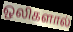
ஒலிகளால்